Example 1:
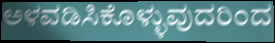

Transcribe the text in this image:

ಅಳವಡಿಸಿಕೊಳ್ಳುವುದರಿಂದ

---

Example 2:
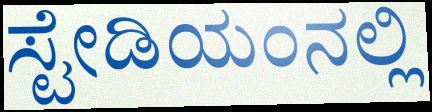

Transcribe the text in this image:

ಸ್ಟೇಡಿಯಂನಲ್ಲಿ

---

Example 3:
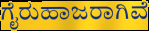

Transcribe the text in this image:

ಗೈರುಹಾಜರಾಗಿವೆ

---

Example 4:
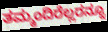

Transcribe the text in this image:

ತಮ್ಮಂದಿರೆಲ್ಲರನ್ನೂ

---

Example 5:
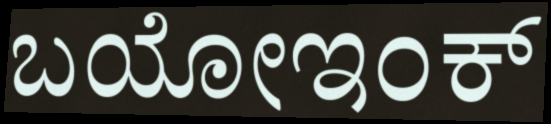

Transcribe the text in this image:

ಬಯೋಇಂಕ್